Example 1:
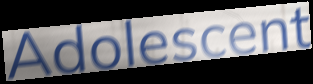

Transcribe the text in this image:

Adolescent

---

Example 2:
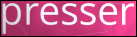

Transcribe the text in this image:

presser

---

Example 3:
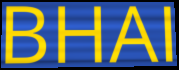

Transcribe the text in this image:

BHAI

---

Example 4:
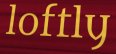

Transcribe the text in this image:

loftly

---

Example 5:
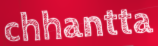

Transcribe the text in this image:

chhantta